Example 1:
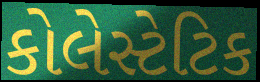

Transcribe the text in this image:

કોલેસ્ટેટિક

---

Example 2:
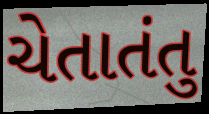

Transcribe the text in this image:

ચેતાતંતુ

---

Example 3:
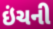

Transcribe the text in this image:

ઇંચની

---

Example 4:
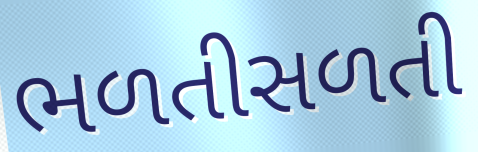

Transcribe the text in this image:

ભળતીસળતી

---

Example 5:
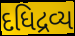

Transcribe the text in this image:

દધિદ્રવ્ય